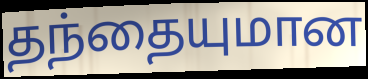
தந்தையுமான